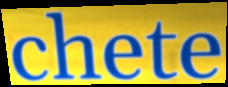
chete